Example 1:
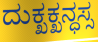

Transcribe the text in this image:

ದುಕ್ಖಕ್ಖನ್ಧಸ್ಸ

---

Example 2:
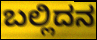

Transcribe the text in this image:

ಬಲ್ಲಿದನ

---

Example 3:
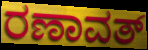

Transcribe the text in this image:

ರಣಾವತ್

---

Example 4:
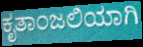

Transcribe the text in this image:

ಕೃತಾಂಜಲಿಯಾಗಿ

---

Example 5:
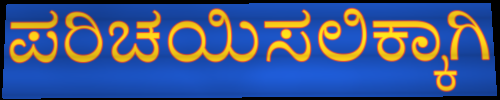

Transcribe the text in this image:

ಪರಿಚಯಿಸಲಿಕ್ಕಾಗಿ